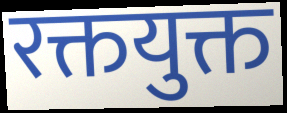
रक्तयुक्त